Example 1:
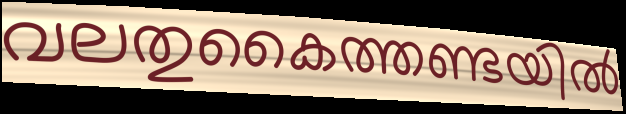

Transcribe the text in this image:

വലതുകൈത്തണ്ടയിൽ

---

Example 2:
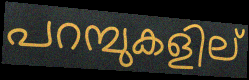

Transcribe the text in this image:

പറമ്പുകളില്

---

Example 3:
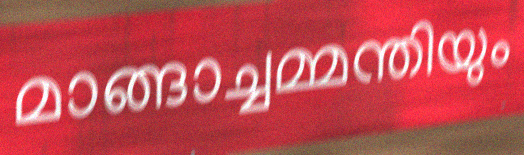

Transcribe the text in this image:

മാങ്ങാച്ചമ്മന്തിയും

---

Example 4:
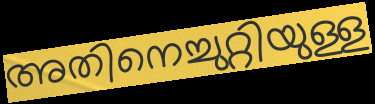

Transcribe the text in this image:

അതിനെച്ചുറ്റിയുള്ള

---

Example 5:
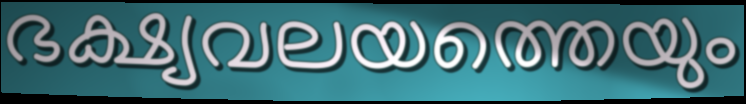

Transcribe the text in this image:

ഭക്ഷ്യവലയത്തെയും